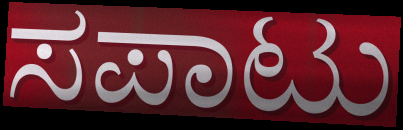
ಸಪಾಟು